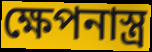
ক্ষেপনাস্ত্র